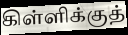
கிள்ளிக்குத்